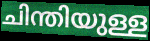
ചിന്തിയുള്ള